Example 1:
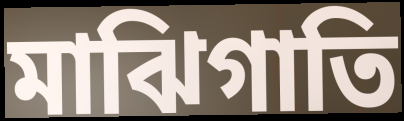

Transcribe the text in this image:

মাঝিগাতি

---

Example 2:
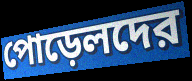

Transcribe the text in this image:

পোড়েলদের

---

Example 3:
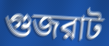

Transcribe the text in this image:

গুজরাট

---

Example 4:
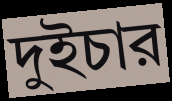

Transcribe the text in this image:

দুইচার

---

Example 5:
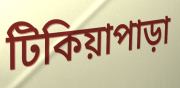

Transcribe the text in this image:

টিকিয়াপাড়া